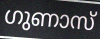
ഗുണാസ്